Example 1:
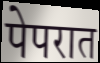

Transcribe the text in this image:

पेपरात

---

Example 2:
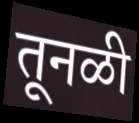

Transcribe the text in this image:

तूनळी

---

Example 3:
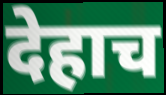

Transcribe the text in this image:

देहाच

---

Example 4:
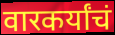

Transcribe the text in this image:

वारकर्यांचं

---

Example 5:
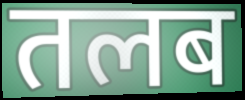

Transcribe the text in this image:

तलब